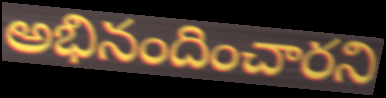
అభినందించారని